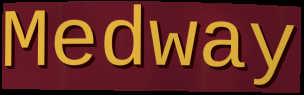
Medway